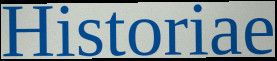
Historiae